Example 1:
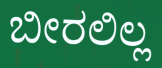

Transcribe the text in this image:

ಬೀರಲಿಲ್ಲ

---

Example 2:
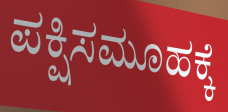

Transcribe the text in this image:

ಪಕ್ಷಿಸಮೂಹಕ್ಕೆ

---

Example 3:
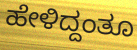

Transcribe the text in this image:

ಹೇಳಿದ್ದಂತೂ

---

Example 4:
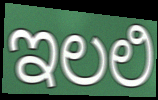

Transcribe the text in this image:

ಇಲಲಿ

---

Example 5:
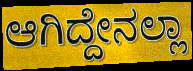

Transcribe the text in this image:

ಆಗಿದ್ದೇನಲ್ಲಾ